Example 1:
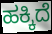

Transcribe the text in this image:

ಹಕ್ಕಿದೆ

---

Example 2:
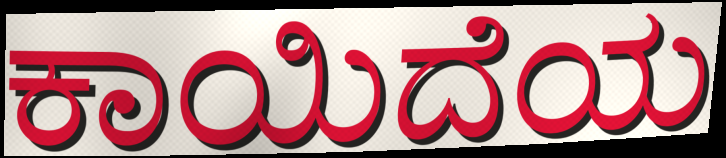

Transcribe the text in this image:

ಕಾಯಿದೆಯ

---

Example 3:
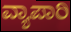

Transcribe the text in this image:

ವ್ಯಾಪಾರಿ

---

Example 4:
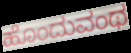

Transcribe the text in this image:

ಹೊಂದುವಂಥ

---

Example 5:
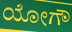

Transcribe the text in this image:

ಯೋಗೌ